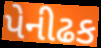
પેનીઢક